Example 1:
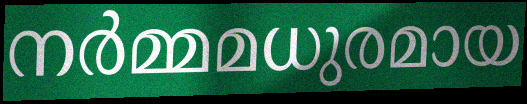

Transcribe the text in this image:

നർമ്മമധുരമായ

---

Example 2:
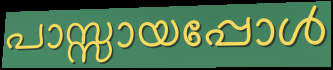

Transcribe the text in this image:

പാസ്സായപ്പോൾ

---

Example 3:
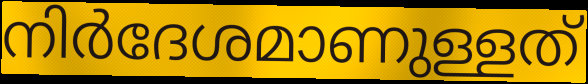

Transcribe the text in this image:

നിർദേശമാണുള്ളത്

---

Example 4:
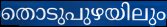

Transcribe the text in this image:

തൊടുപുഴയിലും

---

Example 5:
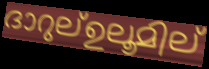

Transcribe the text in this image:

ദാറുല്ഉലൂമില്